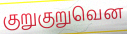
குறுகுறுவென